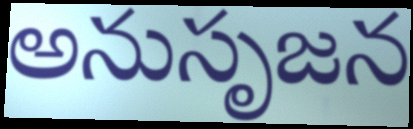
అనుసృజన